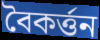
বৈকর্ত্তন